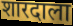
शारदाला